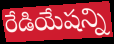
రేడియేషన్ని